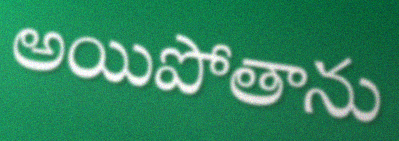
అయిపోతాను